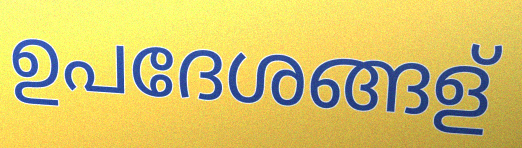
ഉപദേശങ്ങള്